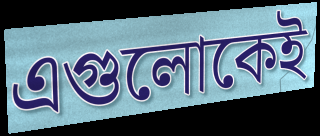
এগুলোকেই